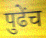
पुढेंच